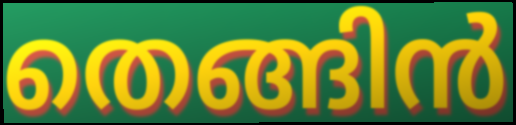
തെങ്ങിൻ